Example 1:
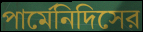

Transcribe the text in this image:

পার্মেনিদিসের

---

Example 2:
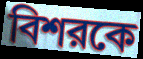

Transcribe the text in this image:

বিশরকে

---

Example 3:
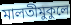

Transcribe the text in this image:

মালতীমুকুলে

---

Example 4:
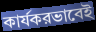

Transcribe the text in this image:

কার্যকরভাবেই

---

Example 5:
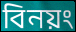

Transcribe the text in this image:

বিনয়ং